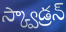
స్క్వాడ్రన్